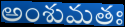
అంశుమతః